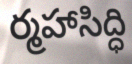
ర్మహాసిద్ధి